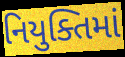
નિયુક્તિમાં